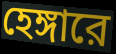
হেঙ্গারে